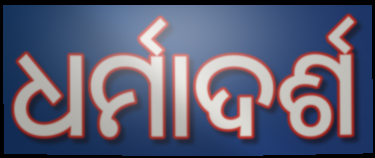
ଧର୍ମାଦର୍ଶ